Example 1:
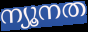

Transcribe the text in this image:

ന്യൂനത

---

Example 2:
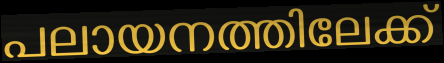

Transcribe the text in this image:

പലായനത്തിലേക്ക്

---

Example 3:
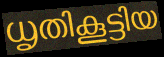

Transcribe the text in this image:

ധൃതികൂട്ടിയ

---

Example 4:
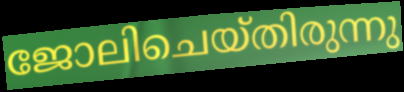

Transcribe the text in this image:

ജോലിചെയ്തിരുന്നു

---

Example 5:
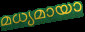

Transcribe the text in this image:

മധ്യമായാ